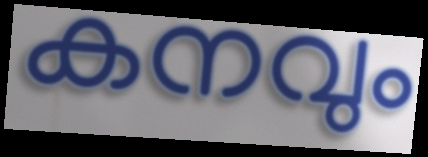
കനവും